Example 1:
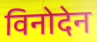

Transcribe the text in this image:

विनोदेन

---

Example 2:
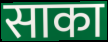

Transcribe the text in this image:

साका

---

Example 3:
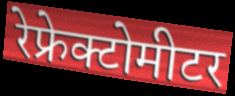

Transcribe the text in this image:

रेफ्रेक्टोमीटर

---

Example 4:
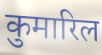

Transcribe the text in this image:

कुमारिल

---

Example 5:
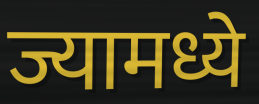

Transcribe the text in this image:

ज्यामध्ये